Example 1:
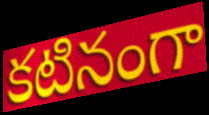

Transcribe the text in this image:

కటినంగా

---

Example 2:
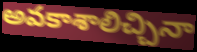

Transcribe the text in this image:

అవకాశాలిచ్చినా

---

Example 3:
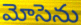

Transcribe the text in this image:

మోసెను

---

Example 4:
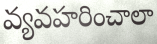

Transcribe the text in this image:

వ్యవహరించాలా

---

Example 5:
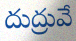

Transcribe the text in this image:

దుద్రువే